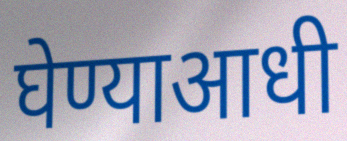
घेण्याआधी